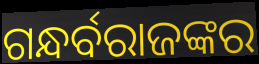
ଗନ୍ଧର୍ବରାଜଙ୍କର